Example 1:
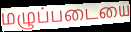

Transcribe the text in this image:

மழுப்படையை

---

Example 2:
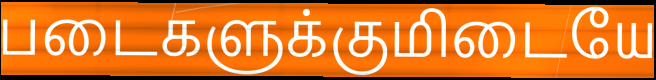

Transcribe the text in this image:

படைகளுக்குமிடையே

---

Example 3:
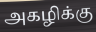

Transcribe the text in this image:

அகழிக்கு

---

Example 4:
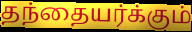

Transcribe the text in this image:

தந்தையர்க்கும்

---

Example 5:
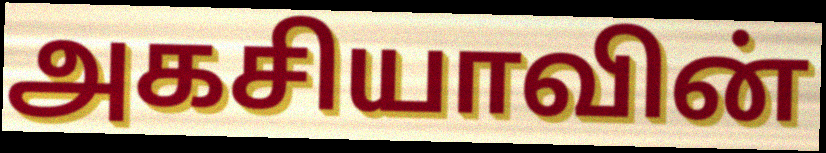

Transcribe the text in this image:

அகசியாவின்